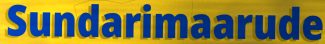
Sundarimaarude